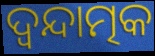
ଦ୍ୱନ୍ଦାତ୍ମକ